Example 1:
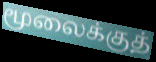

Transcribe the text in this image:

மூலைக்குத்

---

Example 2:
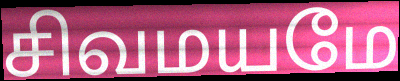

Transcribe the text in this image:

சிவமயமே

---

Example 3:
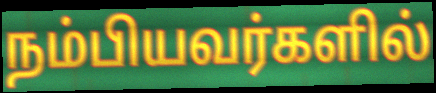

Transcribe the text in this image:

நம்பியவர்களில்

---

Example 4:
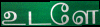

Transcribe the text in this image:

உடளே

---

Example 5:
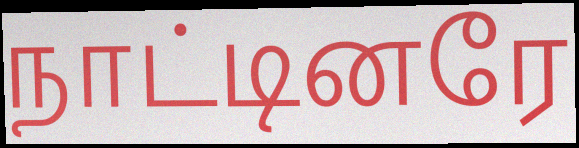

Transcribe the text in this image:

நாட்டினரே